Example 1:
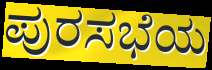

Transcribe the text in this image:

ಪುರಸಭೆಯ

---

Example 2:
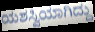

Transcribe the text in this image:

ಯಶಸ್ವಿಯಾಗಿದ್ದು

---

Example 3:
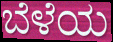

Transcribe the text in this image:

ಬೆಳೆಯ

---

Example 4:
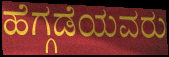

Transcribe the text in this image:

ಹೆಗ್ಗಡೆಯವರು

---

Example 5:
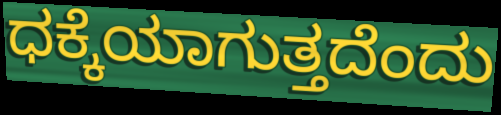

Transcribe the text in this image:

ಧಕ್ಕೆಯಾಗುತ್ತದೆಂದು